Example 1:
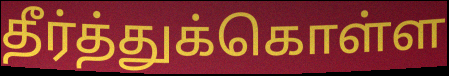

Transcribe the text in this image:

தீர்த்துக்கொள்ள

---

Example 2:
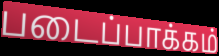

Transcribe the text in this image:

படைப்பாக்கம்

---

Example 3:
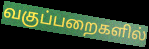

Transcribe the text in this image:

வகுப்பறைகளில்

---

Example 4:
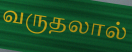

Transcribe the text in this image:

வருதலால்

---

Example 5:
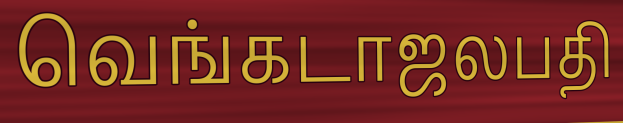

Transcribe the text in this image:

வெங்கடாஜலபதி